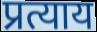
प्रत्याय